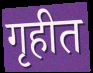
गृहीत